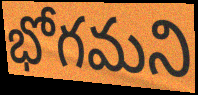
భోగమని